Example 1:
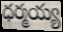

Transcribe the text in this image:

ధర్మయ్య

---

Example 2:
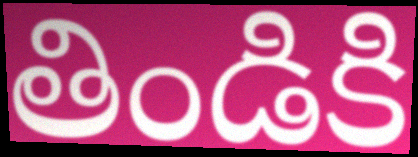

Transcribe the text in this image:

తిండికి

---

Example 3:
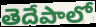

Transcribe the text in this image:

తెదేపాలో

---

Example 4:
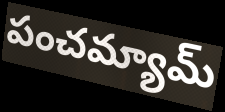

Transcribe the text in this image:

పంచమ్యామ్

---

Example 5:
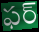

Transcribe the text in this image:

ఫర్